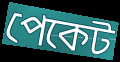
পেকেট